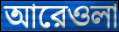
আরেওলা